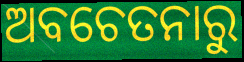
ଅବଚେତନାରୁ